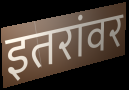
इतरांवर